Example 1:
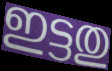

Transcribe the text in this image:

ഇട്ടതു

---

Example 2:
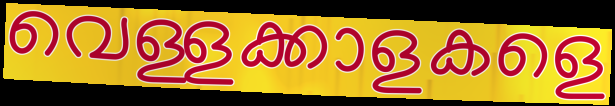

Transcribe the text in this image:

വെള്ളക്കാളകളെ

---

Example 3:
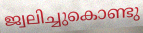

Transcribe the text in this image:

ജ്വലിച്ചുകൊണ്ടു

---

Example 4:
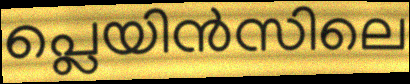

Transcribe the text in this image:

പ്ലെയിൻസിലെ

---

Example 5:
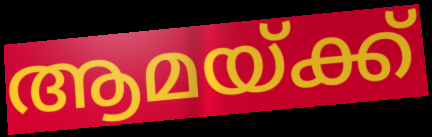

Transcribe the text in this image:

ആമയ്ക്ക്